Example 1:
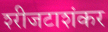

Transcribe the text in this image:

श्रीजटाशंकर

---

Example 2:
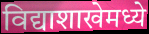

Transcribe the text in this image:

विद्याशाखेमध्ये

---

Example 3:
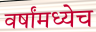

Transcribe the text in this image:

वर्षांमध्येच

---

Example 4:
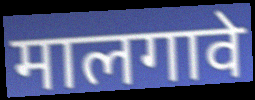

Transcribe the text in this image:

मालगावे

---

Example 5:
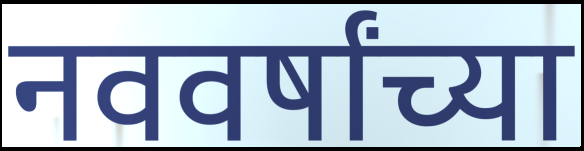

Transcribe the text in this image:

नववर्षांच्या